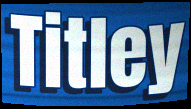
Titley